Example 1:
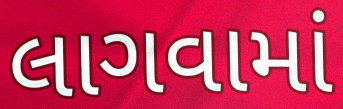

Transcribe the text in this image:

લાગવામાં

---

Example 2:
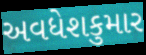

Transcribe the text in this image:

અવધેશકુમાર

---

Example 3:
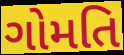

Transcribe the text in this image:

ગોમતિ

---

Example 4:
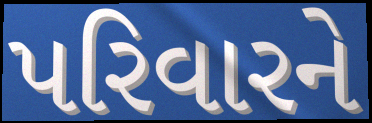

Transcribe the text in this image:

પરિવારને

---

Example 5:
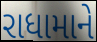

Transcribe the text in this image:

રાધામાને